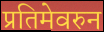
प्रतिमेवरुन